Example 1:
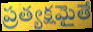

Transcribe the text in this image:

ప్రత్యక్షమైతే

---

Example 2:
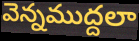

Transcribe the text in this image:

వెన్నముద్దలా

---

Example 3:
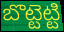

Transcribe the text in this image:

బొట్టెట్టి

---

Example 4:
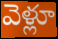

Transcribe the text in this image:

వెళ్లూ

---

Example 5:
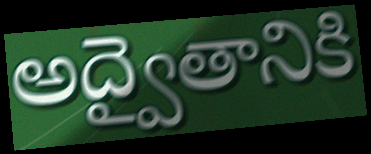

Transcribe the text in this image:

అద్వైతానికి